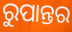
ରୁପାନ୍ତର